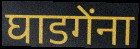
घाडगेंना